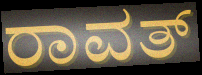
ರಾವತ್